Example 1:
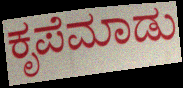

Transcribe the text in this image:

ಕೃಪೆಮಾಡು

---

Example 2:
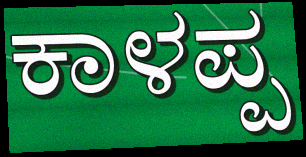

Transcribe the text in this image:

ಕಾಳಪ್ಪ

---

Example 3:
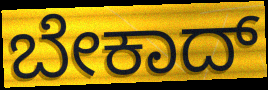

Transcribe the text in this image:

ಬೇಕಾದ್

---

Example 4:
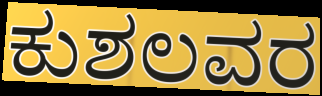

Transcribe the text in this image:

ಕುಶಲವರ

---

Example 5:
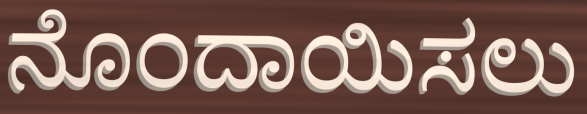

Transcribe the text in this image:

ನೊಂದಾಯಿಸಲು